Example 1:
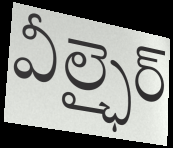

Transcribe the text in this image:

వీల్ఛైర్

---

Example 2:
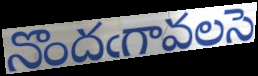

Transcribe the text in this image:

నొందఁగావలసె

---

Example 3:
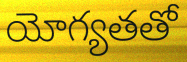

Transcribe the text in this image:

యోగ్యతతో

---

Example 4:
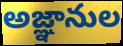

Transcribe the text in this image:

అజ్ఞానుల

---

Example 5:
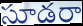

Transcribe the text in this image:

సూడరా